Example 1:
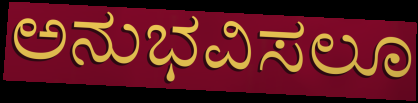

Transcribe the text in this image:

ಅನುಭವಿಸಲೂ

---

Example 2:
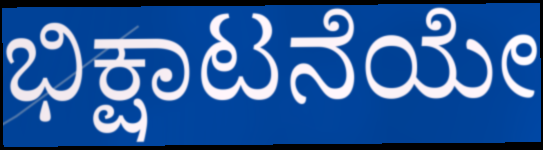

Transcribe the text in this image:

ಭಿಕ್ಷಾಟನೆಯೇ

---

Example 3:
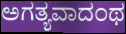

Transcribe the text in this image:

ಅಗತ್ಯವಾದಂಥ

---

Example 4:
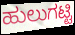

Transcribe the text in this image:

ಹುಲುಗಟ್ಟಿ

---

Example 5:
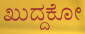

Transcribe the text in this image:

ಖುದ್ದಕೋ